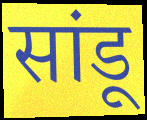
सांडू